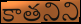
కాతనిని